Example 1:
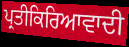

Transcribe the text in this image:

ਪ੍ਰਤੀਕਿਰਿਆਵਾਦੀ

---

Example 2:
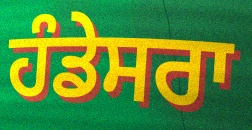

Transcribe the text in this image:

ਹੰਡੇਸਰਾ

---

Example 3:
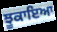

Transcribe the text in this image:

ਝੂਕਾਇਆ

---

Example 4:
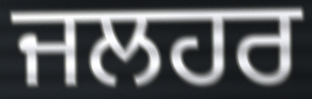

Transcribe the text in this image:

ਜਲਹਰ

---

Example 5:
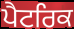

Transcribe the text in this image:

ਪੈਟਰਿਕ